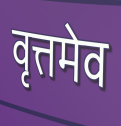
वृत्तमेव